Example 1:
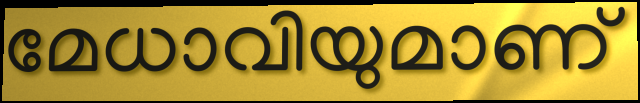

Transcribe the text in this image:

മേധാവിയുമാണ്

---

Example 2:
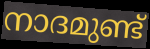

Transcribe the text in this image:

നാദമുണ്ട്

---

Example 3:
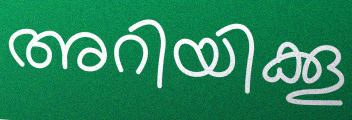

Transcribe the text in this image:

അറിയിക്കൂ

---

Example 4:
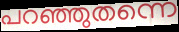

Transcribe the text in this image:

പറഞ്ഞുതന്നെ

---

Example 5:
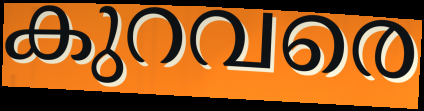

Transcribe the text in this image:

കുറവരെ